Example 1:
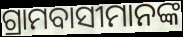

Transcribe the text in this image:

ଗ୍ରାମବାସୀମାନଙ୍କ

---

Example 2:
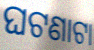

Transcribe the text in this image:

ଘଟଣାଟା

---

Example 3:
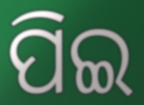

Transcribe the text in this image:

ପିଇ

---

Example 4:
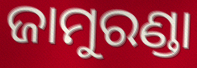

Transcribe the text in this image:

ଜାମୁରଣ୍ଡା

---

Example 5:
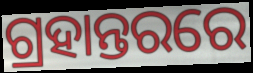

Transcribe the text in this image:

ଗ୍ରହାନ୍ତରରେ